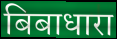
बिबाधारा